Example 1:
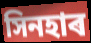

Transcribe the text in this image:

সিনহাৰ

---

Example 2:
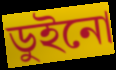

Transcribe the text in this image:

ডুইনো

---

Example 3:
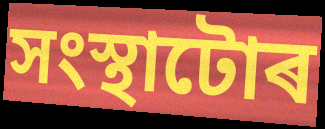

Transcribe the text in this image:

সংস্থাটোৰ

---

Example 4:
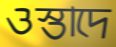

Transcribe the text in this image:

ওস্তাদে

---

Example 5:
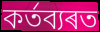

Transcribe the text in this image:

কৰ্তব্যৰত